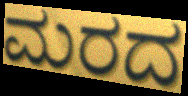
ಮರದ